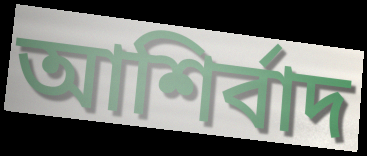
আশির্বাদ